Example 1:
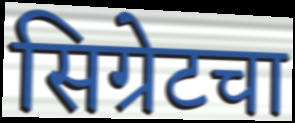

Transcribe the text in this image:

सिग्रेटचा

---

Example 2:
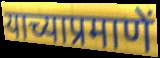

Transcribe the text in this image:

याच्याप्रमाणें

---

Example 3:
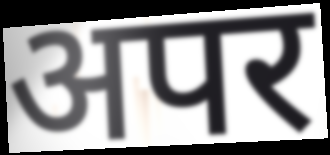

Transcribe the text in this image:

अपर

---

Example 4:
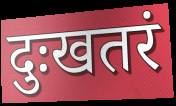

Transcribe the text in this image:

दुःखतरं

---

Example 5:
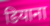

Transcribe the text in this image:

डियाना